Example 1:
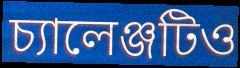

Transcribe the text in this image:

চ্যালেঞ্জটিও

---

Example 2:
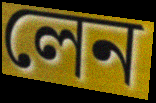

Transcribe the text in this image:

লেন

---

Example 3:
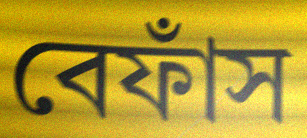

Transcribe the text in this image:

বেফাঁস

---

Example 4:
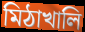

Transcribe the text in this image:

মিঠাখালি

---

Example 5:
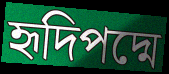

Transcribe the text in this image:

হৃদিপদ্মে